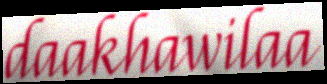
daakhawilaa